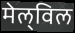
मेल्विल